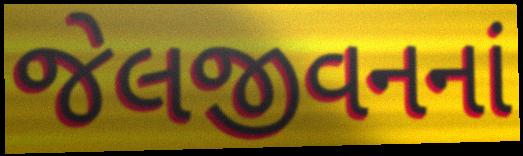
જેલજીવનનાં